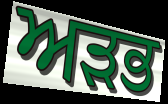
ਅੜਭ